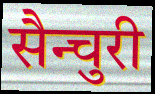
सैन्चुरी